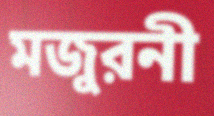
মজুরনী